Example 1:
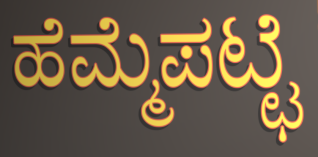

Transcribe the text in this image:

ಹೆಮ್ಮೆಪಟ್ಟೆ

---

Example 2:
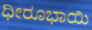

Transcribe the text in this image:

ಧೀರೂಭಾಯಿ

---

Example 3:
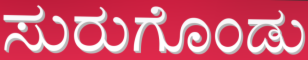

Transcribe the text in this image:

ಸುರುಗೊಂಡು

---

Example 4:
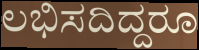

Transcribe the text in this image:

ಲಭಿಸದಿದ್ದರೂ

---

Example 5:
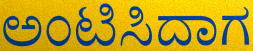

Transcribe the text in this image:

ಅಂಟಿಸಿದಾಗ